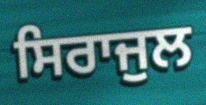
ਸਿਰਾਜੁਲ